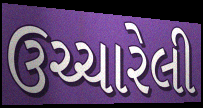
ઉચ્ચારેલી